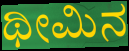
ಥೀಮಿನ